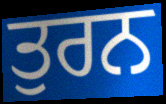
ਤੁਰਨ